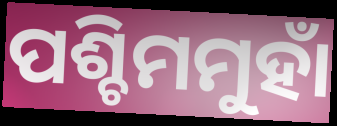
ପଶ୍ଚିମମୁହାଁ